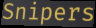
Snipers